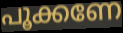
പൂക്കണേ